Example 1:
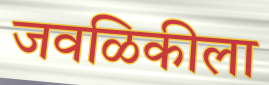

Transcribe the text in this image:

जवळिकीला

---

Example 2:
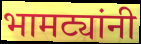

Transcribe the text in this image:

भामट्यांनी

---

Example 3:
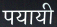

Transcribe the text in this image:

पयायी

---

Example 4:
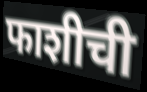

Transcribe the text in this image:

फाशीची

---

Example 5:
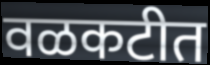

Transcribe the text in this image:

वळकटीत